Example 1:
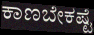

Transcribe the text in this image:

ಕಾಣಬೇಕಷ್ಟೆ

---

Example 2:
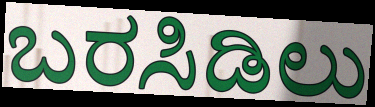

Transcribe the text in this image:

ಬರಸಿಡಿಲು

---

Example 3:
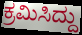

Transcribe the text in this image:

ಕ್ರಮಿಸಿದ್ದು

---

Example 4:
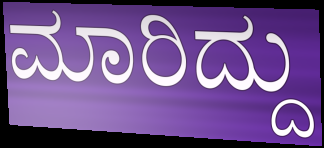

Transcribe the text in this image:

ಮಾರಿದ್ದು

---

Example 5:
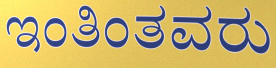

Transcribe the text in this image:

ಇಂತಿಂತವರು